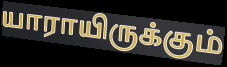
யாராயிருக்கும்